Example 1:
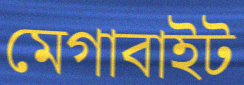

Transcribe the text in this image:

মেগাবাইট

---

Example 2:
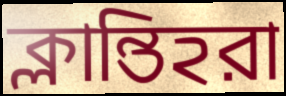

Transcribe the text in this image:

ক্লান্তিহরা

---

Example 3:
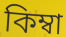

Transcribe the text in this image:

কিম্বা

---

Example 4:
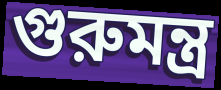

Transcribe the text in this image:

গুরুমন্ত্র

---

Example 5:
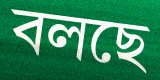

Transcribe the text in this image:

বলছে